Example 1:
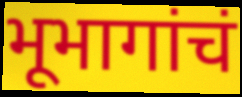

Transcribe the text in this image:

भूभागांचं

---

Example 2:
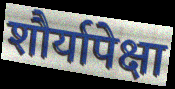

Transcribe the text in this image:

शौर्यापेक्षा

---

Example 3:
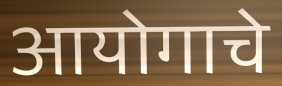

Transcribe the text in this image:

आयोगाचे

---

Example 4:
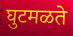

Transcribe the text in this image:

घुटमळते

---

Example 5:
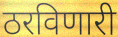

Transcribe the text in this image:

ठरविणारी